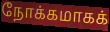
நோக்கமாகக்